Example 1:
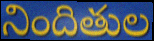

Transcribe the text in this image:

నిందితుల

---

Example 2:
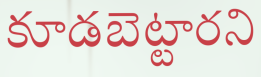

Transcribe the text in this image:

కూడబెట్టారని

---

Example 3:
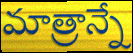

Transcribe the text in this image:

మాత్రాన్నే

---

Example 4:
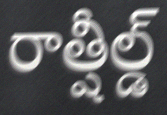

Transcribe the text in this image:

రాత్షీల్డ్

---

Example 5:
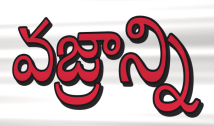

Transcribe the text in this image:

వజ్రాన్ని